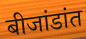
बीजांडांत